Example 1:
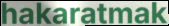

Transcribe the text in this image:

hakaratmak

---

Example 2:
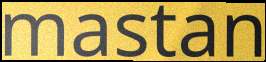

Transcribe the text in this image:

mastan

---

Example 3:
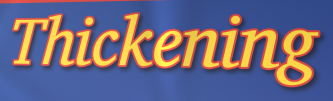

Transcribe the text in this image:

Thickening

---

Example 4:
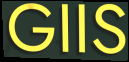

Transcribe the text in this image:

GIIS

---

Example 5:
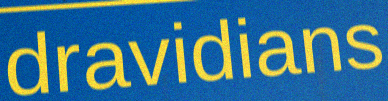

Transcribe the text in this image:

dravidians